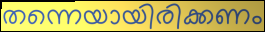
തന്നെയായിരിക്കണം